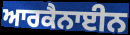
ਆਰਕੈਨਾਈਨ